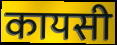
कायसी